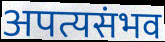
अपत्यसंभव